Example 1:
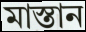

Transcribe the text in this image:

মাস্তান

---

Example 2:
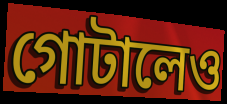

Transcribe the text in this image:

গোটালেও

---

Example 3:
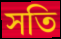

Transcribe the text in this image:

সতি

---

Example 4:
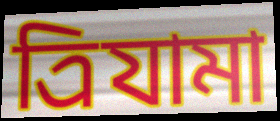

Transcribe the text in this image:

ত্রিযামা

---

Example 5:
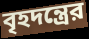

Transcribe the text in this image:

বৃহদন্ত্রের